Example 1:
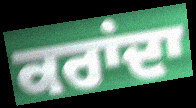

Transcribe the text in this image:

ਕਰਾਂਦਾ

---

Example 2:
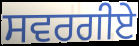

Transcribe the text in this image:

ਸਵਰਗੀਏ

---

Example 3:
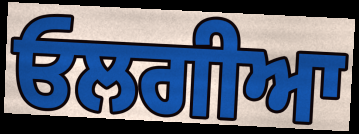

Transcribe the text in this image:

ਓਲਗੀਆ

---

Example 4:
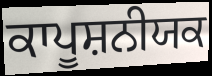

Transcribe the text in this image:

ਕਾਪੂਸ਼ਨੀਯਕ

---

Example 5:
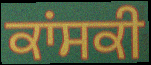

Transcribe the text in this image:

ਕਾਂਸਕੀ